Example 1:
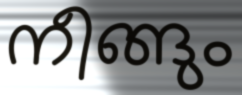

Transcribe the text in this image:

നീങ്ങും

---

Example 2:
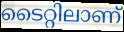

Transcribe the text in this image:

ടൈറ്റിലാണ്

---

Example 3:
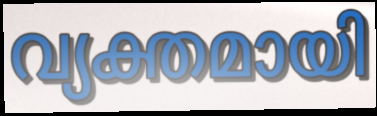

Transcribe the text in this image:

വ്യക്തമായി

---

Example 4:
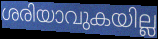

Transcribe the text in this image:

ശരിയാവുകയില്ല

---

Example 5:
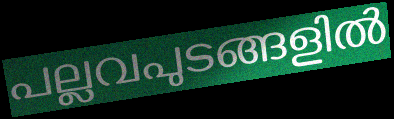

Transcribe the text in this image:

പല്ലവപുടങ്ങളിൽ